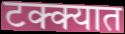
टक्क्यात